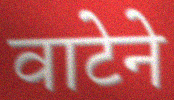
वाटेने